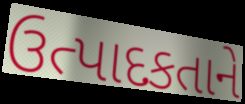
ઉત્પાદકતાને